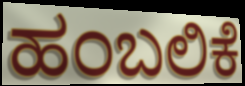
ಹಂಬಲಿಕೆ